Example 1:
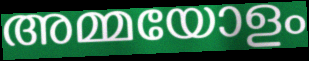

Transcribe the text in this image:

അമ്മയോളം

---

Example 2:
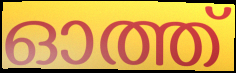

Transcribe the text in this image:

ഓത്ത്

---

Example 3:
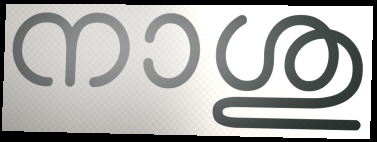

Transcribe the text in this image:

നാശു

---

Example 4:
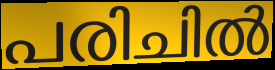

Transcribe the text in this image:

പരിചിൽ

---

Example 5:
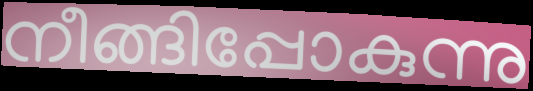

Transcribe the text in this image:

നീങ്ങിപ്പോകുന്നു